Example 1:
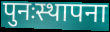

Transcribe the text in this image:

पुनःस्थापना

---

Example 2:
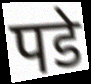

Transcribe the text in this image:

पडे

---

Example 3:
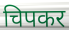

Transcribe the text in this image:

चिपकर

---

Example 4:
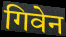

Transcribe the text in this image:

गिवेन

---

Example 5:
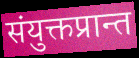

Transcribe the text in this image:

संयुक्तप्रान्त